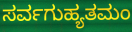
ಸರ್ವಗುಹ್ಯತಮಂ